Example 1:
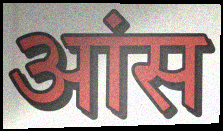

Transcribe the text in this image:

आंस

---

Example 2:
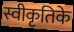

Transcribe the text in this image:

स्वीकृतिके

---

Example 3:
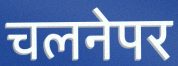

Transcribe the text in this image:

चलनेपर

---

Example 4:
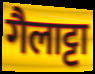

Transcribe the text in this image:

गैलाट्टा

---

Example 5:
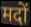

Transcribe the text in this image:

मदों